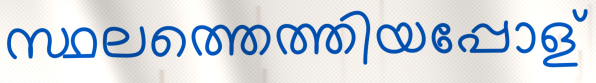
സ്ഥലത്തെത്തിയപ്പോള്